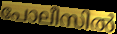
പോലീസിൽ